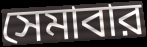
সেমাবার